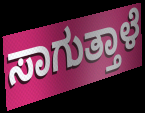
ಸಾಗುತ್ತಾಳೆ